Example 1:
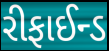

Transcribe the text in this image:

રીફાઈન્ડ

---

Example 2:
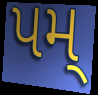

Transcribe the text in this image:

પમ્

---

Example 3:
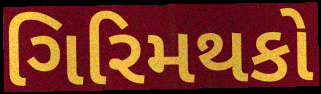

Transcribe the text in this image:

ગિરિમથકો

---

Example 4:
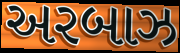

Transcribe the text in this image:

અરબાઝ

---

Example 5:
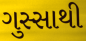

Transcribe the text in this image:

ગુસ્સાથી